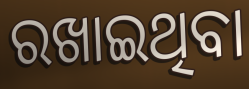
ରଖାଇଥିବା